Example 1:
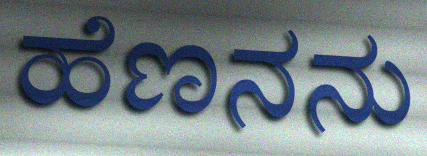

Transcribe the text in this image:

ಹೆಣನನು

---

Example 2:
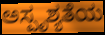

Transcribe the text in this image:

ಅಸ್ಪೃಶ್ಯತೆಯ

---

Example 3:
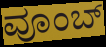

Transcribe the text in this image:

ವೂಂಬ್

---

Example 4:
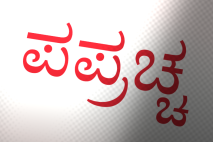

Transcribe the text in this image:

ಪಪ್ರಚ್ಚ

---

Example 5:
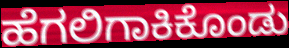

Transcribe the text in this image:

ಹೆಗಲಿಗಾಕಿಕೊಂಡು